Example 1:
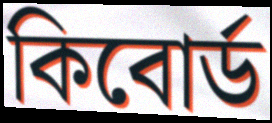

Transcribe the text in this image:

কিবোর্ড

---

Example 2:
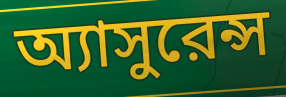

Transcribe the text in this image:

অ্যাসুরেন্স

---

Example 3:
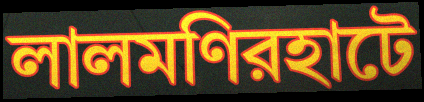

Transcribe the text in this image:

লালমণিরহাটে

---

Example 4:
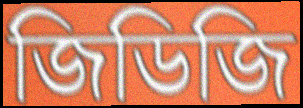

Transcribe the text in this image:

জিডিজি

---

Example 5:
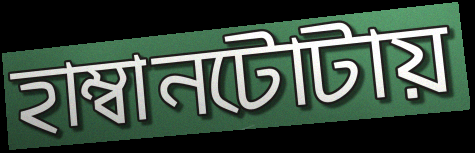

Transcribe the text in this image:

হাম্বানটোটায়